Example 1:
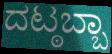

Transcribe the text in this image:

ದಟ್ಠಬ್ಬಾ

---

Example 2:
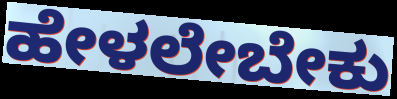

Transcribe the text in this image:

ಹೇಳಲೇಬೇಕು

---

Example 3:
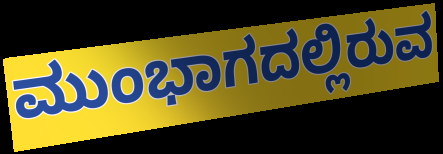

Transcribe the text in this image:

ಮುಂಭಾಗದಲ್ಲಿರುವ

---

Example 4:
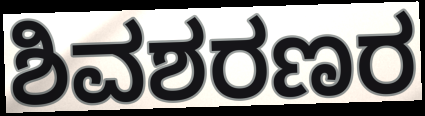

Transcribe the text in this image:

ಶಿವಶರಣರ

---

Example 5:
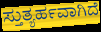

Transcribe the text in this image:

ಸ್ತುತ್ಯರ್ಹವಾಗಿದೆ